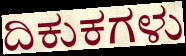
ದಿಕುಕಗಳು